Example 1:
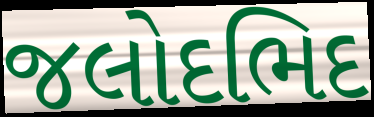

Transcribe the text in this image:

જલોદભિદ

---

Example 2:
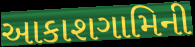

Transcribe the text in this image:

આકાશગામિની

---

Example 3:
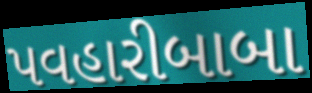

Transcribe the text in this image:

પવહારીબાબા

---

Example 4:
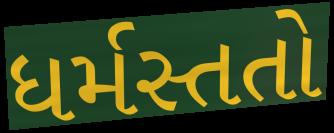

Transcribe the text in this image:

ધર્મસ્તતો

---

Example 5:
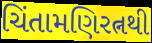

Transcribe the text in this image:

ચિંતામણિરત્નથી